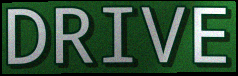
DRIVE